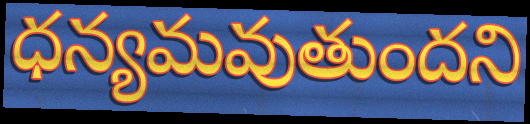
ధన్యమవుతుందని